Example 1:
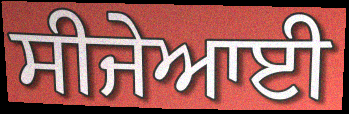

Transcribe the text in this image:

ਸੀਜੇਆਈ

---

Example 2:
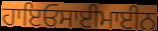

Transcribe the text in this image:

ਹਾਇਓਸਾਈਮਾਈਨ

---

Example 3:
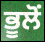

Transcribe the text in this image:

ਭੂਲੋਂ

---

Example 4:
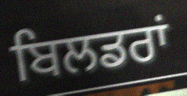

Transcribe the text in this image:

ਬਿਲਡਰਾਂ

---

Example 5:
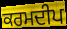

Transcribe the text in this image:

ਕਰਮਦੀਪ